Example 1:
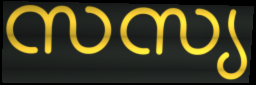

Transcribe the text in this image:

സസ്യ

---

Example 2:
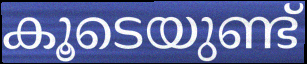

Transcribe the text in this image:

കൂടെയുണ്ട്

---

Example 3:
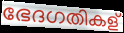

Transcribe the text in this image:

ഭേദഗതികള്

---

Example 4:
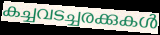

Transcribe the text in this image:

കച്ചവടച്ചരക്കുകൾ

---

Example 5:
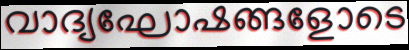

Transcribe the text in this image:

വാദ്യഘോഷങ്ങളോടെ